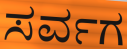
ಸರ್ವಗ